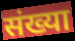
संख्या